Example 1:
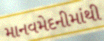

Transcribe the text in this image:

માનવમેદનીમાંથી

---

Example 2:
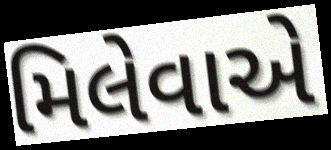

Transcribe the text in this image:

મિલેવાએ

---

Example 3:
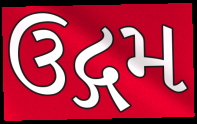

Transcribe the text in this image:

ઉદ્ગમ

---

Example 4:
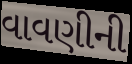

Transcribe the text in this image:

વાવણીની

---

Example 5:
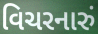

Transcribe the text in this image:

વિચરનારું